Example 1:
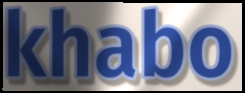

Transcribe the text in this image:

khabo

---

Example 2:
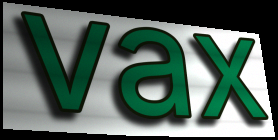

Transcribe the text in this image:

vax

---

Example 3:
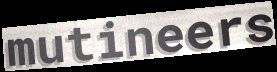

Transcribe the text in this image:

mutineers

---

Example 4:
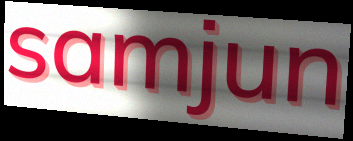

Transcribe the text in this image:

samjun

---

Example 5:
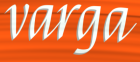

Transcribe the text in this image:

varga